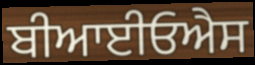
ਬੀਆਈਓਐਸ